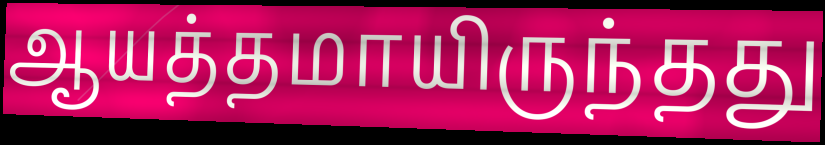
ஆயத்தமாயிருந்தது